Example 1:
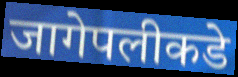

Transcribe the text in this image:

जागेपलीकडे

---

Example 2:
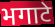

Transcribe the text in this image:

भगाटे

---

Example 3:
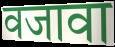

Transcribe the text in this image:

वजावा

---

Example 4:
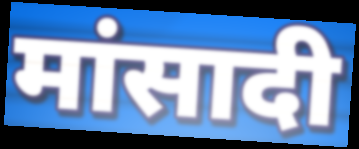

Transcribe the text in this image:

मांसादी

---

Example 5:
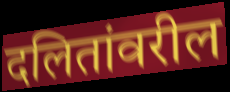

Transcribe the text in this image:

दलितांवरील